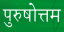
पुरुषोत्तम